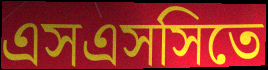
এসএসসিতে